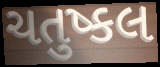
ચતુષ્કલ